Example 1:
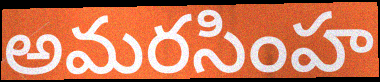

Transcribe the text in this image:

అమరసింహ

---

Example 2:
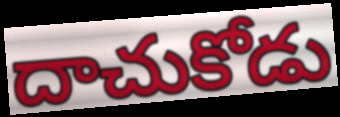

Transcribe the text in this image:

దాచుకోడు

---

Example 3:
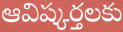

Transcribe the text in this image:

ఆవిష్కర్తలకు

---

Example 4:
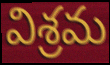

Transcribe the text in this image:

విశ్రమ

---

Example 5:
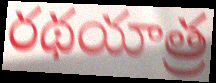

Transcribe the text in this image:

రథయాత్ర